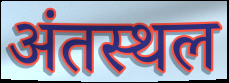
अंतस्थल